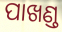
ପାଖଣ୍ଡ